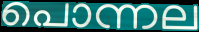
പൊന്നല